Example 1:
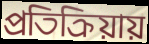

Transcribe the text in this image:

প্রতিক্রিয়ায়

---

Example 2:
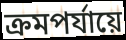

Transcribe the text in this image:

ক্রমপর্যায়ে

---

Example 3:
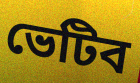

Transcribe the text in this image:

ভেটিব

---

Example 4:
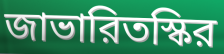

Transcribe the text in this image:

জাভারিতস্কির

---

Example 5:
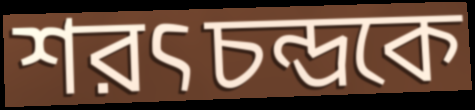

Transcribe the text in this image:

শরৎচন্দ্রকে